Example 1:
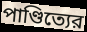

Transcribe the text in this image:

পাণ্ডিত্যের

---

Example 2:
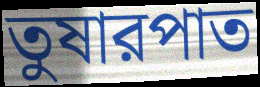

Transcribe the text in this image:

তুষারপাত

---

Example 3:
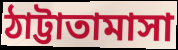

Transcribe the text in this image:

ঠাট্টাতামাসা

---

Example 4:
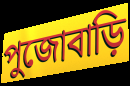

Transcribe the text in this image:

পুজোবাড়ি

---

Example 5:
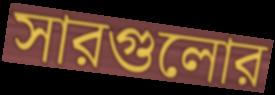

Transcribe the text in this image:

সারগুলোর